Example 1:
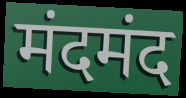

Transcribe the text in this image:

मंदमंद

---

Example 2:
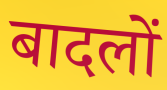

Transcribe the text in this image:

बादलों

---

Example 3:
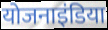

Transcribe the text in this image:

योजनाइंडिया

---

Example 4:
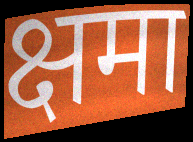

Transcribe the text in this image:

क्षमा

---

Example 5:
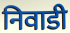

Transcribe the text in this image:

निवाडी